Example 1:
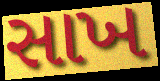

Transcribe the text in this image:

સાખ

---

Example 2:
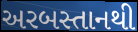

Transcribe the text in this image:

અરબસ્તાનથી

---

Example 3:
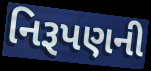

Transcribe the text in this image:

નિરૂપણની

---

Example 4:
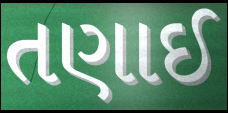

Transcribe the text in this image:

તણાઈ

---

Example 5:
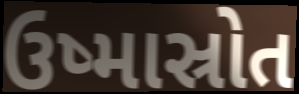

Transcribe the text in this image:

ઉષ્માસ્રોત